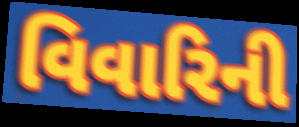
વિવારિની